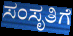
ಸಂಸೃತಿಗೆ